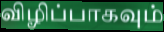
விழிப்பாகவும்